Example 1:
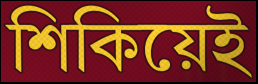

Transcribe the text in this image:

শিকিয়েই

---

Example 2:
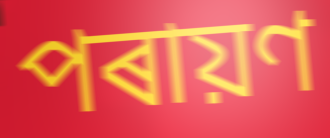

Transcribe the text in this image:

পৰায়ণ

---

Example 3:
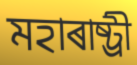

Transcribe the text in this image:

মহাৰাষ্ট্ৰী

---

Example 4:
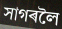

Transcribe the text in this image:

সাগৰলৈ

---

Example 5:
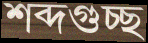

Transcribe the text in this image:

শব্দগুচ্ছ